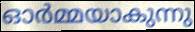
ഓർമ്മയാകുന്നു